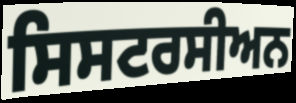
ਸਿਸਟਰਸੀਅਨ